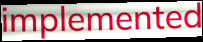
implemented